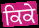
ਕਿਕੇ